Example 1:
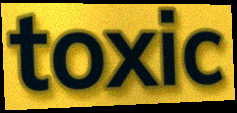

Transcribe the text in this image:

toxic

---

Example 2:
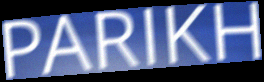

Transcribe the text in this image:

PARIKH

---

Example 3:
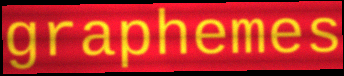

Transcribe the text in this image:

graphemes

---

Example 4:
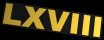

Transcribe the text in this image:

LXVIII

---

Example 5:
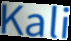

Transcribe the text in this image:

Kali